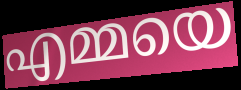
എമ്മയെ